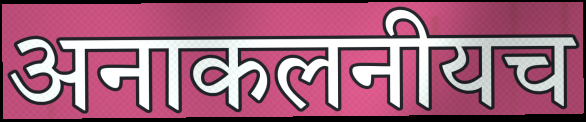
अनाकलनीयच